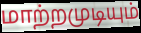
மாற்றமுடியும்